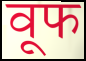
वूफ